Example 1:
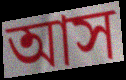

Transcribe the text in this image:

আস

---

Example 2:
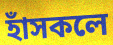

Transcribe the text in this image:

হাঁসকলে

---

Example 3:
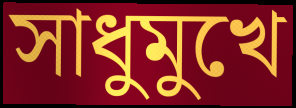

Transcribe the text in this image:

সাধুমুখে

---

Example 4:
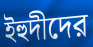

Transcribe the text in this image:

ইহুদীদের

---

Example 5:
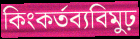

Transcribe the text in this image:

কিংকর্তব্যবিমুঢ়